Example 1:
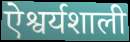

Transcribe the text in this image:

ऐश्वर्यशाली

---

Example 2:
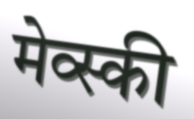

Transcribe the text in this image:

मेव्स्की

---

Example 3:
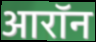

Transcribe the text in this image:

आरॉन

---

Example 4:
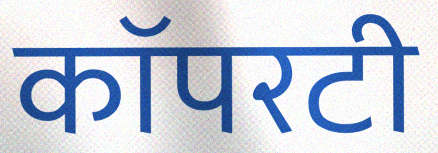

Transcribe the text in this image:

कॉपरटी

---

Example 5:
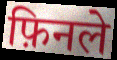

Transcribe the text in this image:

फ़िनले